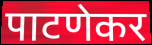
पाटणेकर